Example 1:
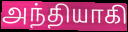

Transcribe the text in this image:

அந்தியாகி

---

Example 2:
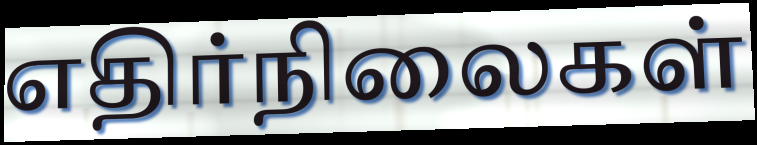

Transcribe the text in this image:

எதிர்நிலைகள்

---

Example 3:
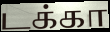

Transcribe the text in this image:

டக்கா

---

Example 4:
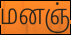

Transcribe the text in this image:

மனஞ்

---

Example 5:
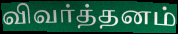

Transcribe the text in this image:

விவர்த்தனம்